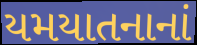
યમયાતનાનાં